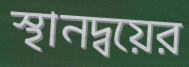
স্থানদ্বয়ের